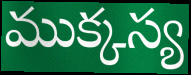
ముక్కస్య